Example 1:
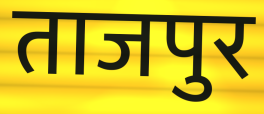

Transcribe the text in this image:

ताजपुर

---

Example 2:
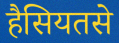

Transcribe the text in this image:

हैसियतसे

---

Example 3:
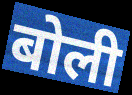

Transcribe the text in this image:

बोली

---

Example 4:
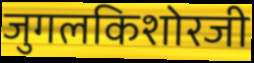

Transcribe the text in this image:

जुगलकिशोरजी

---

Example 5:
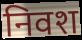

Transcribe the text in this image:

निवश